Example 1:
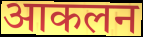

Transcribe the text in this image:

आकलन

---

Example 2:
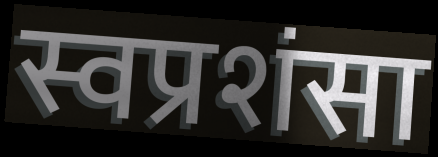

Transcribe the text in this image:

स्वप्रशंसा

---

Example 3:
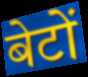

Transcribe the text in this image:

बेटों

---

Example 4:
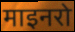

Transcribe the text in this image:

माइनरो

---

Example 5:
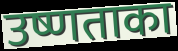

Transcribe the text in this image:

उष्णताका